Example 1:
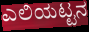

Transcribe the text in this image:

ಎಲಿಯಟ್ಟನ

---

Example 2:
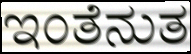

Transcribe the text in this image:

ಇಂತೆನುತ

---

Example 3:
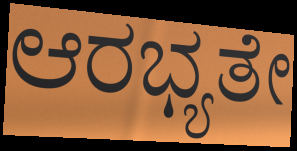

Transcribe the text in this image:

ಆರಭ್ಯತೇ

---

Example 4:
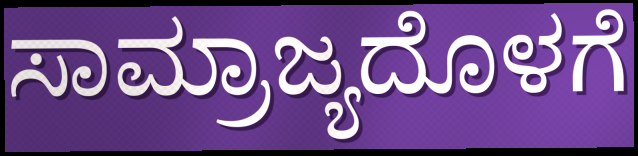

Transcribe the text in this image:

ಸಾಮ್ರಾಜ್ಯದೊಳಗೆ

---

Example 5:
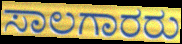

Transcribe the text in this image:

ಸಾಲಗಾರರು